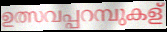
ഉത്സവപ്പറമ്പുകള്